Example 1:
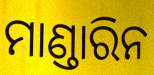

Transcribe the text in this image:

ମାଣ୍ଡାରିନ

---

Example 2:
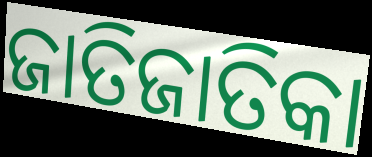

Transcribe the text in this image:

ଜାତିଜାତିକା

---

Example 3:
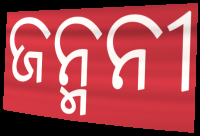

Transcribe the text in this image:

ଜନ୍ମନୀ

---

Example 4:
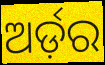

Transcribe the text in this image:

ଅର୍ଡ଼ର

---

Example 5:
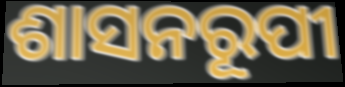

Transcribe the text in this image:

ଶାସନରୂପୀ